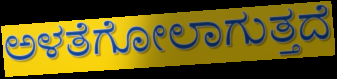
ಅಳತೆಗೋಲಾಗುತ್ತದೆ